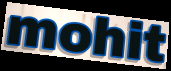
mohit